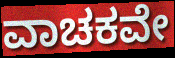
ವಾಚಕವೇ